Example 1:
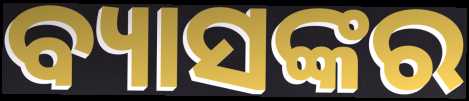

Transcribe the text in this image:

ବ୍ୟାସଙ୍କର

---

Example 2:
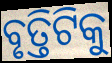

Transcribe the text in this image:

ବୃତ୍ତିଟିକୁ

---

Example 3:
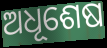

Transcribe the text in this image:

ଅଧୂଶେଷ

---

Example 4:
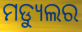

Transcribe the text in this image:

ମଡ୍ୟୁଲର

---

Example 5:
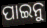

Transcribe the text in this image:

ପାଇନୁ